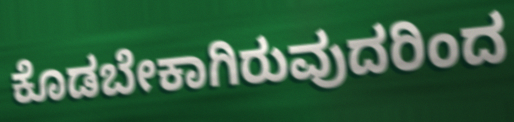
ಕೊಡಬೇಕಾಗಿರುವುದರಿಂದ